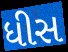
ધીસ